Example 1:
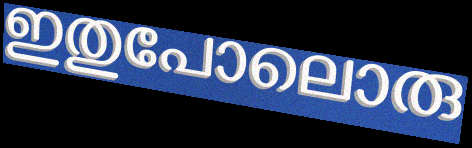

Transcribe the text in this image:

ഇതുപോലൊരു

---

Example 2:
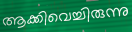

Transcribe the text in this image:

ആക്കിവെച്ചിരുന്നു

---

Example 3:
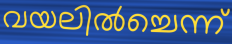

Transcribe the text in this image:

വയലിൽച്ചെന്ന്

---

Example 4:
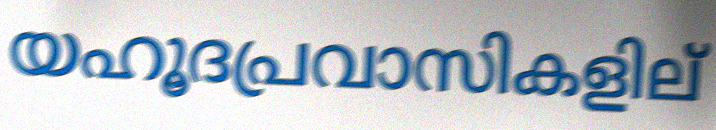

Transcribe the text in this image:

യഹൂദപ്രവാസികളില്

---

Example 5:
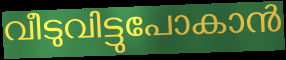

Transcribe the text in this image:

വീടുവിട്ടുപോകാൻ